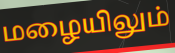
மழையிலும்